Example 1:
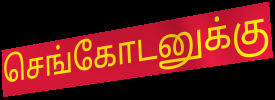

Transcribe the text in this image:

செங்கோடனுக்கு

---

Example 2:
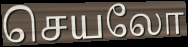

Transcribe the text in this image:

செயலோ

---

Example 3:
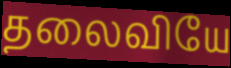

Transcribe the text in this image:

தலைவியே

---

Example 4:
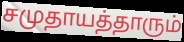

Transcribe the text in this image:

சமுதாயத்தாரும்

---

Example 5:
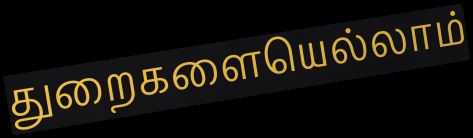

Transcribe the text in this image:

துறைகளையெல்லாம்